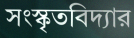
সংস্কৃতবিদ্যার